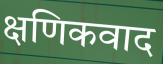
क्षणिकवाद